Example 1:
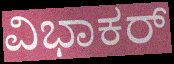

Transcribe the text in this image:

ವಿಭಾಕರ್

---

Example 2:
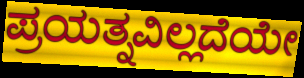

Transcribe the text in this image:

ಪ್ರಯತ್ನವಿಲ್ಲದೆಯೇ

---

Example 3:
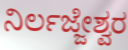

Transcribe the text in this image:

ನಿರ್ಲಜ್ಜೇಶ್ವರ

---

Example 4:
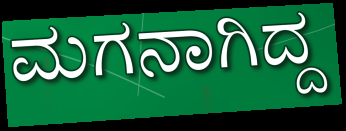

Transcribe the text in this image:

ಮಗನಾಗಿದ್ದ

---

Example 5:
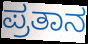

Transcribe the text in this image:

ಪ್ರತಾನ